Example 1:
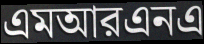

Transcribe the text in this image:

এমআরএনএ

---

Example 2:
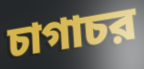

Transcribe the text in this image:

চাগাচর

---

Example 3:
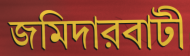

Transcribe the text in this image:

জমিদারবাটী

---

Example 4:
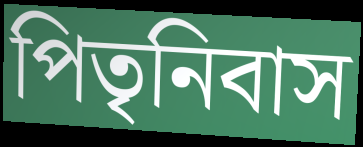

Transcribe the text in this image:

পিতৃনিবাস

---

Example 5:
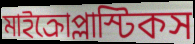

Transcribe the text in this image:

মাইক্রোপ্লাস্টিকস